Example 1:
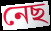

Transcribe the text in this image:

নেছ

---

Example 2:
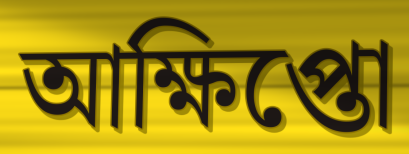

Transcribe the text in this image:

আক্ষিপ্তো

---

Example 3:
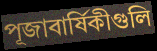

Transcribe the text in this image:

পূজাবার্ষিকীগুলি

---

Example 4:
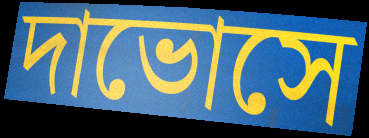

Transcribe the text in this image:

দাভোসে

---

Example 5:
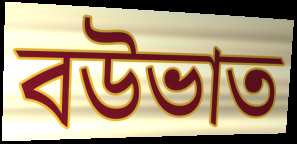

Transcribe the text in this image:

বউভাত